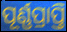
ପୂର୍ଣ୍ଣପ୍ରାପ୍ତି